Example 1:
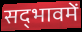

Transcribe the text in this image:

सद्भावमें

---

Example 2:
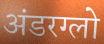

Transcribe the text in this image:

अंडरग्लो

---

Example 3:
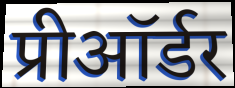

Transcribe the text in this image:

प्रीऑर्डर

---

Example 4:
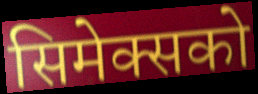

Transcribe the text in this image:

सिमेक्सको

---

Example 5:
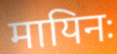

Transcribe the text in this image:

मायिनः